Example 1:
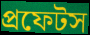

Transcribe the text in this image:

প্রফেটস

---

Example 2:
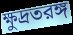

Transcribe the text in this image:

ক্ষুদ্রতরঙ্গ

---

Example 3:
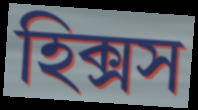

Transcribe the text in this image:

হিক্সস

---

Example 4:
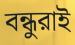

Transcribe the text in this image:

বন্ধুরাই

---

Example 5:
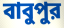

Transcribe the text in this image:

বাবুপুর